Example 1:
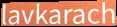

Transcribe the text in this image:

lavkarach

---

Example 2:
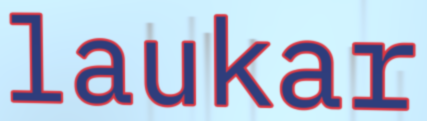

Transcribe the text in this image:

laukar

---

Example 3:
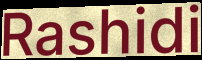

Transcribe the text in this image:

Rashidi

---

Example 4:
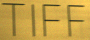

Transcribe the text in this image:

TIFF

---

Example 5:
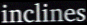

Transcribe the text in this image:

inclines